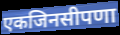
एकजिनसीपणा